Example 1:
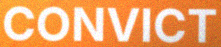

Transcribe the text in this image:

CONVICT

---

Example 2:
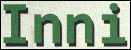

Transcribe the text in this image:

Inni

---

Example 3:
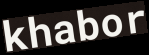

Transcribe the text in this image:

khabor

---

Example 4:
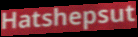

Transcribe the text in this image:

Hatshepsut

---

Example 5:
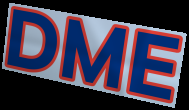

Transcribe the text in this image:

DME